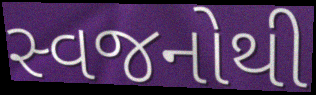
સ્વજનોથી